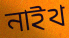
নাইথ